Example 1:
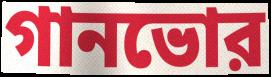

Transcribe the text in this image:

গানভোর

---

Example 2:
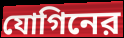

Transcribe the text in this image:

যোগিনের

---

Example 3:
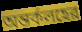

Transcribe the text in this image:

অন্তর্কলহের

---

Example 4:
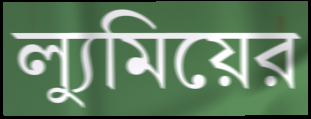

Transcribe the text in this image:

ল্যুমিয়ের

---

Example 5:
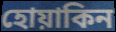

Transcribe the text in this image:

হোয়াকিন